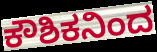
ಕೌಶಿಕನಿಂದ